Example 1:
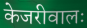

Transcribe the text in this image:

केजरीवालः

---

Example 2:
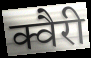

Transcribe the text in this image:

क्वैरी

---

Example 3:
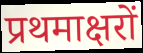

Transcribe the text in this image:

प्रथमाक्षरों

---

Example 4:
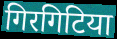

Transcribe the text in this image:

गिरगिटिया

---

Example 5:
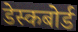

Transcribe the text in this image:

डेस्कबोर्ड